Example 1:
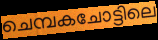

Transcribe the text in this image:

ചെമ്പകചോട്ടിലെ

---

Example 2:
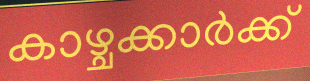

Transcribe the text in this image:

കാഴ്ചക്കാർക്ക്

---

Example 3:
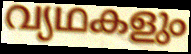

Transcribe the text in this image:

വ്യഥകളും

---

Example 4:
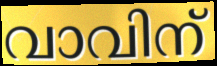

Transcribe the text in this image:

വാവിന്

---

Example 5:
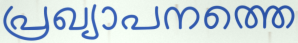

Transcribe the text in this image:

പ്രഖ്യാപനത്തെ